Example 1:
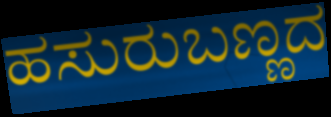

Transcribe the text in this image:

ಹಸುರುಬಣ್ಣದ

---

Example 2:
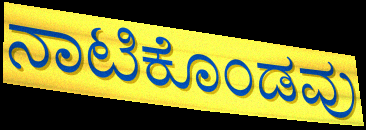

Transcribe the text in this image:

ನಾಟಿಕೊಂಡವು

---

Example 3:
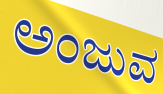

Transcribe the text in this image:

ಅಂಜುವ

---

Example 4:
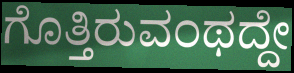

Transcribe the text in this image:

ಗೊತ್ತಿರುವಂಥದ್ದೇ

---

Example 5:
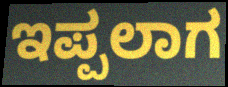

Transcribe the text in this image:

ಇಪ್ಪಲಾಗ